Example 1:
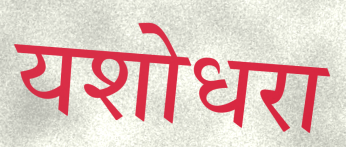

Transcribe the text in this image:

यशोधरा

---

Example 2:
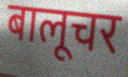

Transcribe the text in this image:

बालूचर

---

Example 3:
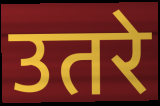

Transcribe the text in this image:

उतरे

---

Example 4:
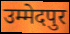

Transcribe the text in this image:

उम्मेदपुर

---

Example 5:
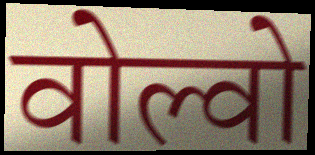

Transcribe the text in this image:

वोल्वो